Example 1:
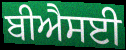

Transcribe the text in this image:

ਬੀਐਸਈ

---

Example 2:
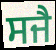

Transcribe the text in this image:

ਸਜੈ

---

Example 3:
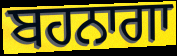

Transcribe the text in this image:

ਬਹਨਾਗਾ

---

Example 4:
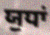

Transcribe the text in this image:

ਯੁਧਾਂ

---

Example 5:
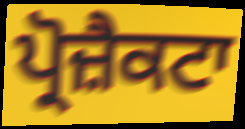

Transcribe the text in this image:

ਪ੍ਰੋਜ਼ੈਕਟਾ